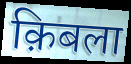
क़िबला